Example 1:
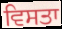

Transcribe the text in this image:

ਵਿਸਤਾ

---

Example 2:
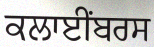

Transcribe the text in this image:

ਕਲਾਈਂਬਰਸ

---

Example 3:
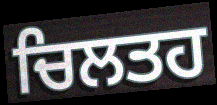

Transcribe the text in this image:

ਚਿਲਤਹ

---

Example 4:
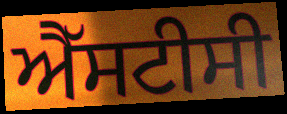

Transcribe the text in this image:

ਐੱਸਟੀਸੀ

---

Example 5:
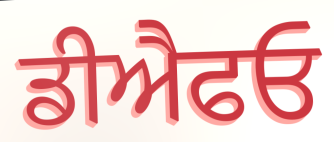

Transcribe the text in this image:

ਡੀਐਫਓ